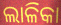
ଲାଳିକା